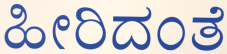
ಹೀರಿದಂತೆ